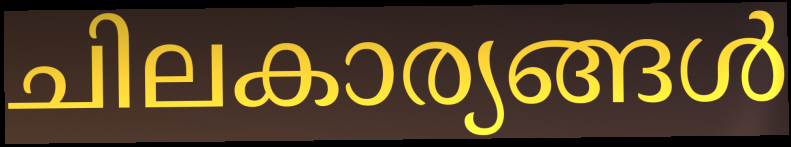
ചിലകാര്യങ്ങൾ